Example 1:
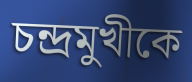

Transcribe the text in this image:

চন্দ্রমুখীকে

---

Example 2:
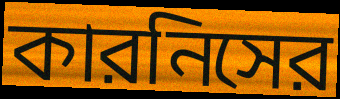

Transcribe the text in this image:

কারনিসের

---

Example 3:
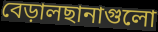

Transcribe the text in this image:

বেড়ালছানাগুলো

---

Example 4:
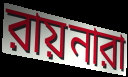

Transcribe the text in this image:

রায়নারা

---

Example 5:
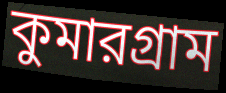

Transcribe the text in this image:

কুমারগ্রাম